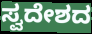
ಸ್ವದೇಶದ